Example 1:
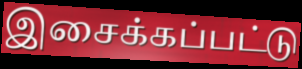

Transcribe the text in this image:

இசைக்கப்பட்டு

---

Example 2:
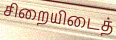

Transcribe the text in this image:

சிறையிடைத்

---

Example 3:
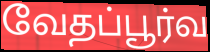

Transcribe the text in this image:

வேதப்பூர்வ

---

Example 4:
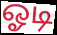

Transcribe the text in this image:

ஓடி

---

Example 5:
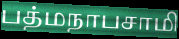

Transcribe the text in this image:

பத்மநாபசாமி